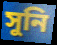
সুনি